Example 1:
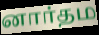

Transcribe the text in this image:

னார்தம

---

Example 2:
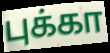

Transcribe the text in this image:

புக்கா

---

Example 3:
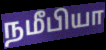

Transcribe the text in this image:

நமீபியா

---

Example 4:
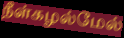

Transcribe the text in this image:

நீள்கழல்மேல்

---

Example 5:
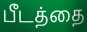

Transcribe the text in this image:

பீடத்தை